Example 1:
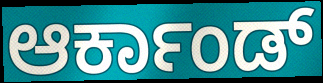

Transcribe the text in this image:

ಆರ್ಕಾಂಡ್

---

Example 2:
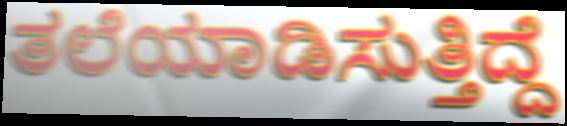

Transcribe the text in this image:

ತಲೆಯಾಡಿಸುತ್ತಿದ್ದೆ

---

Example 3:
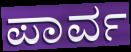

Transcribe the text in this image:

ಪಾರ್ವ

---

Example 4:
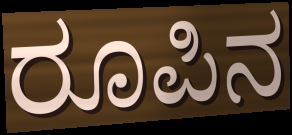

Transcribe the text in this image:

ರೂಪಿನ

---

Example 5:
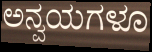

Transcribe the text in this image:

ಅನ್ವಯಗಳೂ